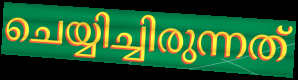
ചെയ്യിച്ചിരുന്നത്